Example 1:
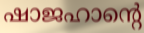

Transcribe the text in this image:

ഷാജഹാന്റെ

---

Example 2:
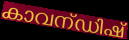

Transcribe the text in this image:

കാവന്ഡിഷ്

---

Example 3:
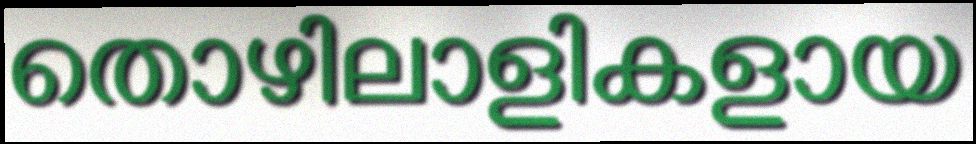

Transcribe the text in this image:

തൊഴിലാളികളായ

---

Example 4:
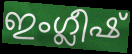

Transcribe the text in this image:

ഇംഗ്ലീഷ്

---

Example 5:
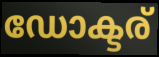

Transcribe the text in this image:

ഡോക്ടര്